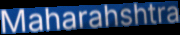
Maharahshtra